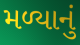
મળ્યાનું